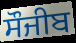
ਸੌਜੀਬ